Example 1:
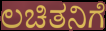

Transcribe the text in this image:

ಲಚಿತನಿಗೆ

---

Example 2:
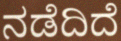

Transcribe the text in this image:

ನಡೆದಿದೆ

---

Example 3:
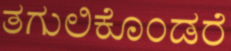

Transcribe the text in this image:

ತಗುಲಿಕೊಂಡರೆ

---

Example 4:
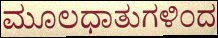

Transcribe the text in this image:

ಮೂಲಧಾತುಗಳಿಂದ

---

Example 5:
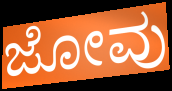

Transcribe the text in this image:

ಜೋವು